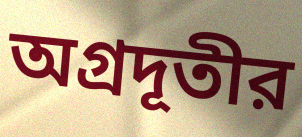
অগ্রদূতীর